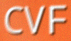
CVF